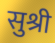
सुश्री